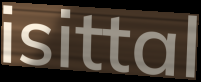
isittal